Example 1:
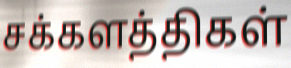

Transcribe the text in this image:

சக்களத்திகள்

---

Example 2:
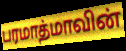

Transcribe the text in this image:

பரமாத்மாவின்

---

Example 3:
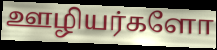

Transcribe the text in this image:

ஊழியர்களோ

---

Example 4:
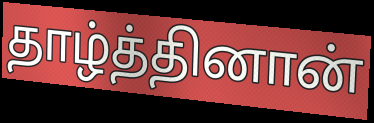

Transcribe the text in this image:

தாழ்த்தினான்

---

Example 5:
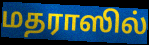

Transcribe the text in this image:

மதராஸில்